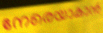
നേരെയാകാൻ